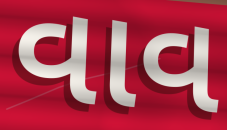
વાવ